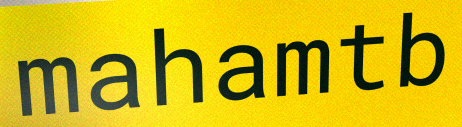
mahamtb